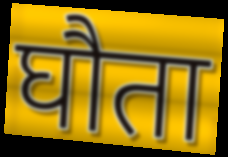
घौता